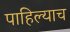
पाहिल्याच